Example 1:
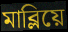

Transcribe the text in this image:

মাব্লিয়ে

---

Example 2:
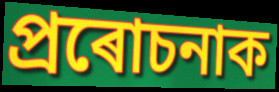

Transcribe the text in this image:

প্ৰৰোচনাক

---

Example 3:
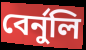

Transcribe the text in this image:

বেৰ্নুলি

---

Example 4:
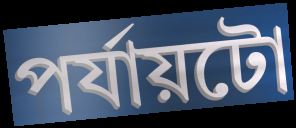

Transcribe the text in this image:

পৰ্যায়টো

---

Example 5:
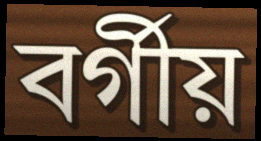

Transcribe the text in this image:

বৰ্গীয়